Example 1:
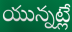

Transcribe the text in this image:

యున్నట్లే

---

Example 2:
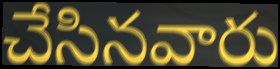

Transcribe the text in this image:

చేసినవారు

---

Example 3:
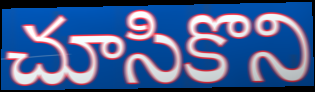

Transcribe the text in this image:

చూసికొని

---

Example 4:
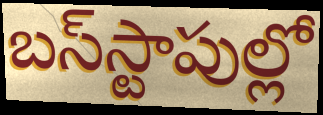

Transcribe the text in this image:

బస్‌స్టాపుల్లో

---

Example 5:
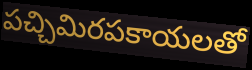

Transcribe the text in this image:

పచ్చిమిరపకాయలతో